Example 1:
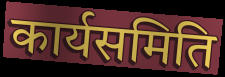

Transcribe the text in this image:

कार्यसमिति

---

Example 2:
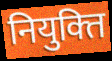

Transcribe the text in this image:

नियुक्‍ति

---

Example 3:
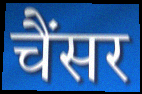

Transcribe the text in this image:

चैंसर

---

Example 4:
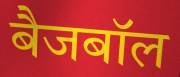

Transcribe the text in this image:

बैजबॉल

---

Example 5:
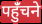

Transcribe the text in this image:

पहुंँचने